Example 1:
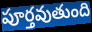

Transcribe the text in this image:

పూర్తవుతుంది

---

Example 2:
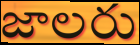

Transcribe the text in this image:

జాలరు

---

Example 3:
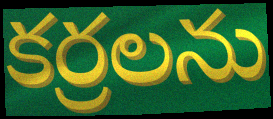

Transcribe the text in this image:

కర్రలను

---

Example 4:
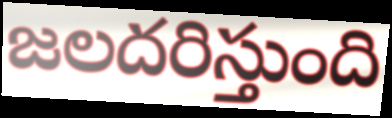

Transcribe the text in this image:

జలదరిస్తుంది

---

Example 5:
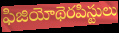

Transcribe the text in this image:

ఫిజియోథెరపిస్టులు